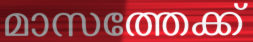
മാസത്തേക്ക്